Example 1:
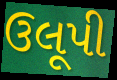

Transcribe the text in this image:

ઉલૂપી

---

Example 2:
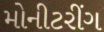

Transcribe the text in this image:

મોનીટરીંગ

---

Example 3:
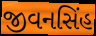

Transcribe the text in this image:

જીવનસિંહ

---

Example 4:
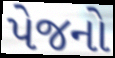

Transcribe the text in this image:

પેજનો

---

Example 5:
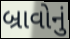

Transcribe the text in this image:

બ્રાવોનું